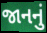
જાનનું